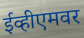
ईव्हीएमवर